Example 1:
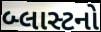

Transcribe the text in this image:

બ્લાસ્ટનો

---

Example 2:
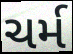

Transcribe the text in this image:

ચર્મ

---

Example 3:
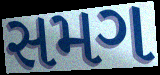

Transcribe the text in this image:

સમગ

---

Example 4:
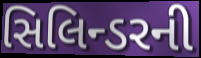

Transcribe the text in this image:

સિલિન્ડરની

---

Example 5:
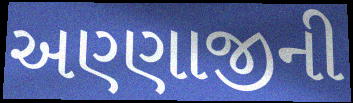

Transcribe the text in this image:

અણ્ણાજીની